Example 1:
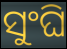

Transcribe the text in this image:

ସୁଂଘି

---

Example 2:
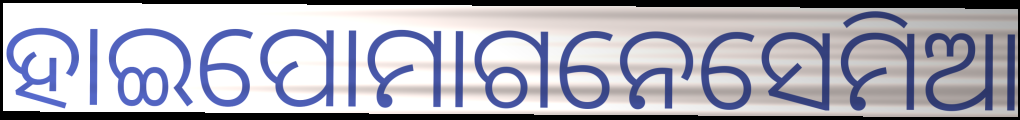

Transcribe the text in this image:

ହାଇପୋମାଗନେସେମିଆ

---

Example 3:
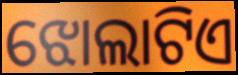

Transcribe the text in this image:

ଝୋଲାଟିଏ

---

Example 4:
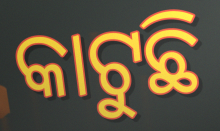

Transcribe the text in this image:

କାଟୁଛି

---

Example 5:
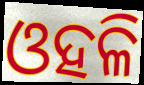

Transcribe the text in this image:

ଓହଳି